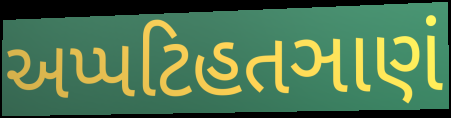
અપ્પટિહતઞાણં